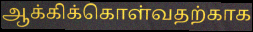
ஆக்கிக்கொள்வதற்காக